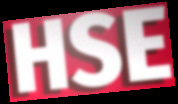
HSE